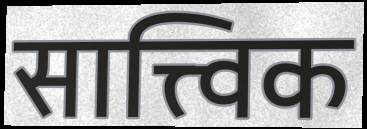
सात्त्विक